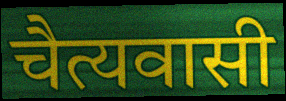
चैत्यवासी